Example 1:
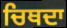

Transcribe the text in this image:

ਚਿਥਦਾ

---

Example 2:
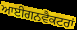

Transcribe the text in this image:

ਆਈਗਨਵੈਕਟਰਾਂ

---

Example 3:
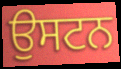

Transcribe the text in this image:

ਉਸਟਨ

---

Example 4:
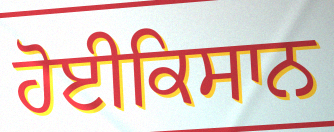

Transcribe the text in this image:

ਹੋਈਕਿਸਾਨ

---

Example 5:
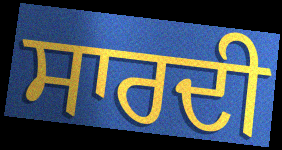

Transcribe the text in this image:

ਸਾਰਦੀ